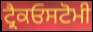
ਟ੍ਰੈਕਓਸਟੋਮੀ